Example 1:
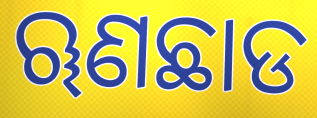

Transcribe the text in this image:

ୠଣଛାଡ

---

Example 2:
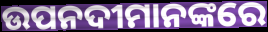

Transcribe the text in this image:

ଉପନଦୀମାନଙ୍କରେ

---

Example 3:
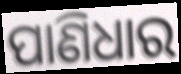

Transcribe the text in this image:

ପାଣିଧାର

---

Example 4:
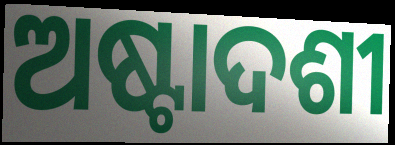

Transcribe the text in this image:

ଅଷ୍ଟାଦଶୀ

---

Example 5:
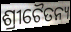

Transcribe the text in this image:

ଶ୍ରୀଚୈତନ୍ୟ